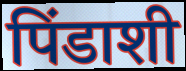
पिंडाशी